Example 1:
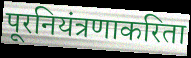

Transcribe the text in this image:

पूरनियंत्रणाकरिता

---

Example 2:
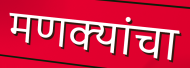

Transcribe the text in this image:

मणक्यांचा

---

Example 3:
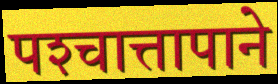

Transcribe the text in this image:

पश्चात्तापाने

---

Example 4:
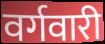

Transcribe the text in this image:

वर्गवारी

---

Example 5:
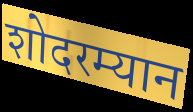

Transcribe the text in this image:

शोदरम्यान